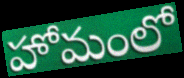
హోమంలో